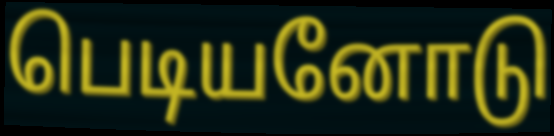
பெடியனோடு